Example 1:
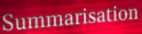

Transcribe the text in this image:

Summarisation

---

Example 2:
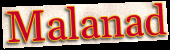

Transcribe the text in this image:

Malanad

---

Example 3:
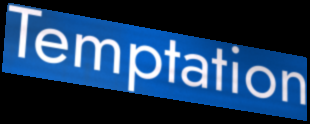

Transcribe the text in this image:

Temptation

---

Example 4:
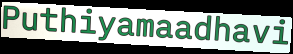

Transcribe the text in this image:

Puthiyamaadhavi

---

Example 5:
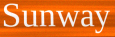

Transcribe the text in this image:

Sunway